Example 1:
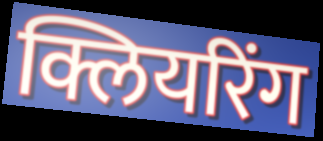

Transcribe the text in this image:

क्लियरिंग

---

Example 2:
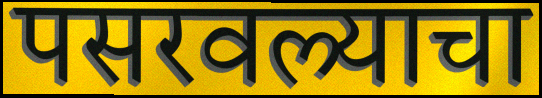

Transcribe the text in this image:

पसरवल्याचा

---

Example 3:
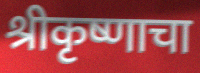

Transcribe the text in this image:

श्रीकृष्णाचा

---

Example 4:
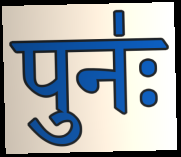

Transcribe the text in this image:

पुनः॑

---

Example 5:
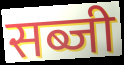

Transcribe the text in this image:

सब्जी